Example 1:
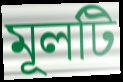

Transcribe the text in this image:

মূলটি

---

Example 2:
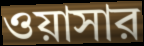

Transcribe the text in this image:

ওয়াসার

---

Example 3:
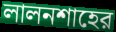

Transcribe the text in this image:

লালনশাহের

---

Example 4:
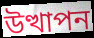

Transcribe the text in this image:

উত্থাপন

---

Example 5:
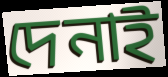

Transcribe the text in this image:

দেনাই